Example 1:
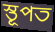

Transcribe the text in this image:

স্তূপত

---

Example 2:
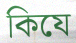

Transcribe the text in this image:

কিযে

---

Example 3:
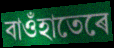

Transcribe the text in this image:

বাওঁহাতেৰে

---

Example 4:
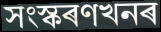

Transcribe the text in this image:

সংস্কৰণখনৰ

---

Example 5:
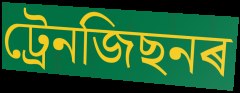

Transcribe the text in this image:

ট্ৰেনজিছনৰ